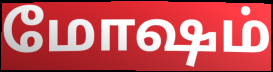
மோஷம்